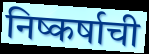
निष्कर्षाची